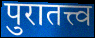
पुरातत्त्व